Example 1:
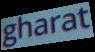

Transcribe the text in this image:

gharat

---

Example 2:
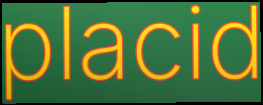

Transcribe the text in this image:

placid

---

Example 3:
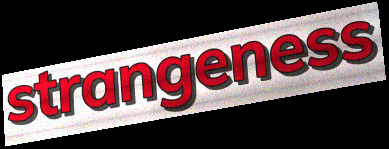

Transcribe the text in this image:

strangeness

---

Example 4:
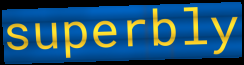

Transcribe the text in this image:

superbly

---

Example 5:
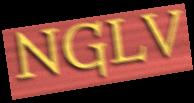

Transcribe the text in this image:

NGLV